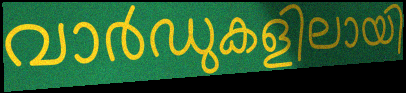
വാർഡുകളിലായി